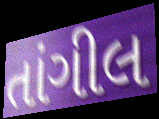
તાંગીલ